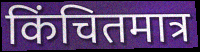
किंचितमात्र